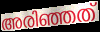
അരിഞ്ഞത്